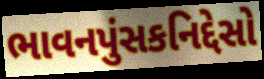
ભાવનપુંસકનિદ્દેસો